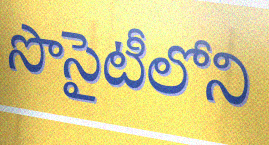
సొసైటీలోని